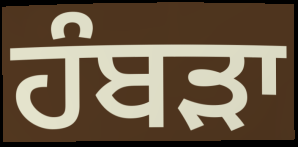
ਹੰਬਡ਼ਾ